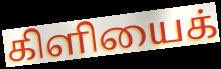
கிளியைக்